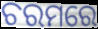
ଚରମରେ